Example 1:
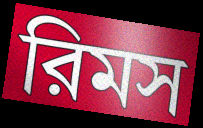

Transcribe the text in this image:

রিমস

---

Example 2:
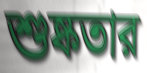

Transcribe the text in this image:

শুষ্কতার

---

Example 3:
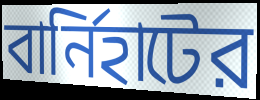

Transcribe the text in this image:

বার্নিহাটের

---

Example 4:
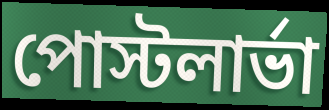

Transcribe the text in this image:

পোস্টলার্ভা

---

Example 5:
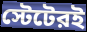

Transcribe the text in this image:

স্টেটেরই